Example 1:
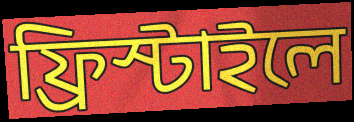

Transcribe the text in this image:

ফ্রিস্টাইলে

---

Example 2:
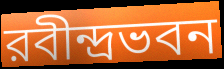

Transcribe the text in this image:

রবীন্দ্রভবন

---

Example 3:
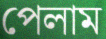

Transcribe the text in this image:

পেলাম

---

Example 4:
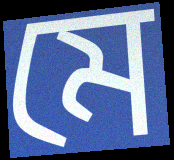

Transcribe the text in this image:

মে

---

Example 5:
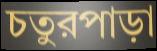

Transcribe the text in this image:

চতুরপাড়া